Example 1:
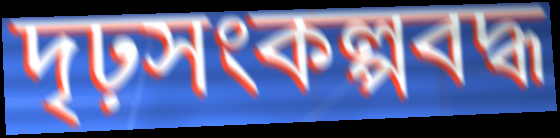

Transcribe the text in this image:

দৃঢ়সংকল্পবদ্ধ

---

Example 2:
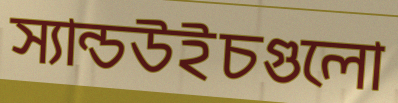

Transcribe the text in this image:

স্যান্ডউইচগুলো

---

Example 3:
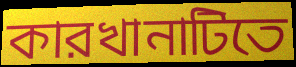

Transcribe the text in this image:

কারখানাটিতে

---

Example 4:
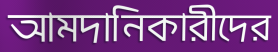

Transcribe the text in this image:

আমদানিকারীদের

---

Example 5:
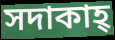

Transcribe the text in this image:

সদাকাহ্